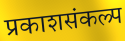
प्रकाशसंकल्प